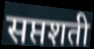
सप्तशती